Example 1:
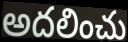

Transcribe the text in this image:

అదలించు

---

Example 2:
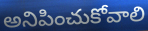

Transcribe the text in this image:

అనిపించుకోవాలి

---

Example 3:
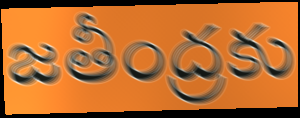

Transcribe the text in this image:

జతీంద్రకు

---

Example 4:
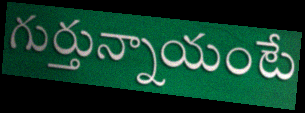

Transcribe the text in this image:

గుర్తున్నాయంటే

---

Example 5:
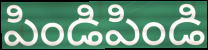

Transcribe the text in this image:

పిండిపిండి